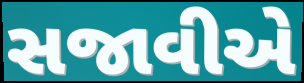
સજાવીએ